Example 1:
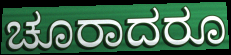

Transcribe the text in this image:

ಚೂರಾದರೂ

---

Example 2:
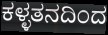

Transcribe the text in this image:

ಕಳ್ಳತನದಿಂದ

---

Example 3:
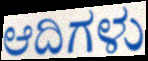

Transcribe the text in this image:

ಆದಿಗಳು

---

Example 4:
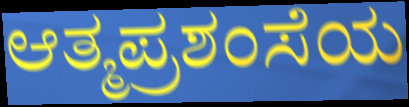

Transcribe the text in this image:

ಆತ್ಮಪ್ರಶಂಸೆಯ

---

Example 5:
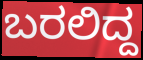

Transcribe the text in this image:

ಬರಲಿದ್ದ